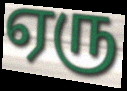
ஏரு